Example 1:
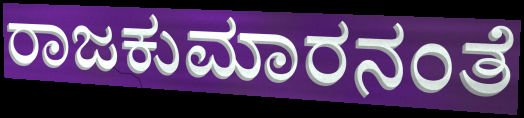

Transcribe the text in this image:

ರಾಜಕುಮಾರನಂತೆ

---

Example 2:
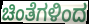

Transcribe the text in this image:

ಚಿಂತೆಗಳಿಂದ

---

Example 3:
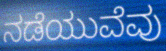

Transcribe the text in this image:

ನಡೆಯುವೆವು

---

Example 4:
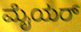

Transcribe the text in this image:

ಮೈಯರ್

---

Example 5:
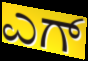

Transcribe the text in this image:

ಎಗ್